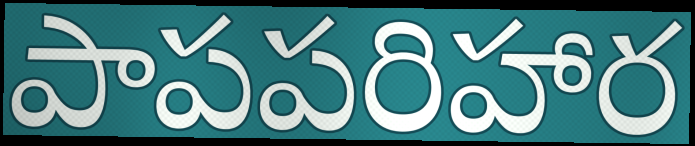
పాపపరిహార